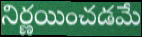
నిర్ణయించడమే